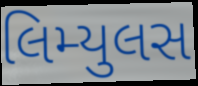
લિમ્યુલસ